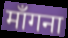
माँगना